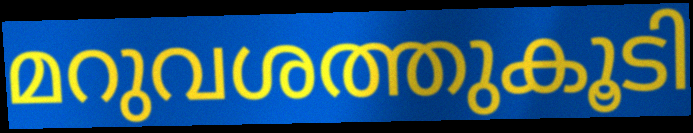
മറുവശത്തുകൂടി